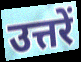
उत्तरें